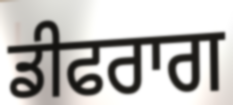
ਡੀਫਰਾਗ